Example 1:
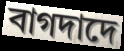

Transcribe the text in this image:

বাগদাদে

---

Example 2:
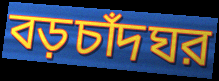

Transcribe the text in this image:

বড়চাঁদঘর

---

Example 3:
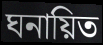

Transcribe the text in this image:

ঘনায়িত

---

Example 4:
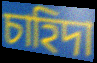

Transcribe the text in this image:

চাহিদা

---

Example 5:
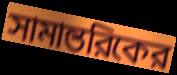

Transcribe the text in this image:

সামান্তরিকের